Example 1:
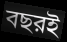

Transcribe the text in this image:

বছরই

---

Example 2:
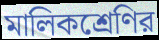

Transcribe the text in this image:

মালিকশ্রেণির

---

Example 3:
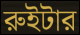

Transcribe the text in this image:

রুইটার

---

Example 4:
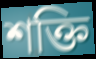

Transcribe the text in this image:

শক্তি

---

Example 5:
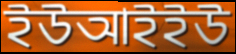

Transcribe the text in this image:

ইউআইইউ